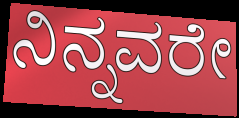
ನಿನ್ನವರೇ